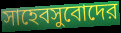
সাহেবসুবোদের